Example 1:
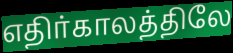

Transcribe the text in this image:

எதிர்காலத்திலே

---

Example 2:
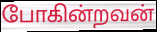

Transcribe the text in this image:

போகின்றவன்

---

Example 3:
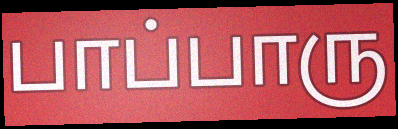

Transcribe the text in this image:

பாப்பாரு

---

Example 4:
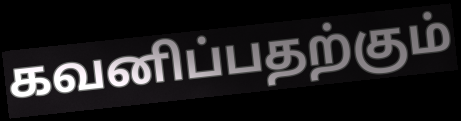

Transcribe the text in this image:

கவனிப்பதற்கும்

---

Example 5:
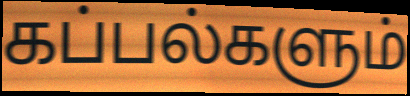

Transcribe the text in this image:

கப்பல்களும்